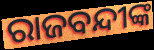
ରାଜବନ୍ଦୀଙ୍କ